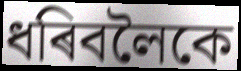
ধৰিবলৈকে